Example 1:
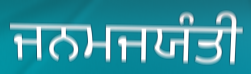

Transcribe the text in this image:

ਜਨਮਜਯੰਤੀ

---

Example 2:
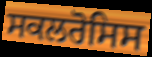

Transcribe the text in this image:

ਸਕਲਰੋਸਿਸ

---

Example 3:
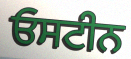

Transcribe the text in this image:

ਓਸਟੀਨ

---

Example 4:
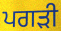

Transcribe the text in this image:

ਪਗੜੀ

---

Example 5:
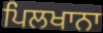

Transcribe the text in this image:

ਪਿਲਖਾਨਾ